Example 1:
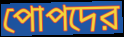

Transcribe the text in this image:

পোপদের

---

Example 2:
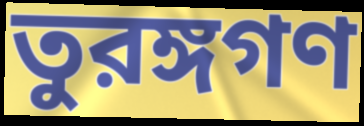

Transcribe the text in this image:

তুরঙ্গগণ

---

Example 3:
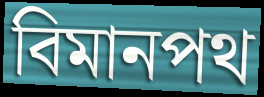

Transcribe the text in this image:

বিমানপথ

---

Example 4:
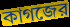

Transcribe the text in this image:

কাগজের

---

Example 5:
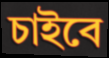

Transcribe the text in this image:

চাইবে